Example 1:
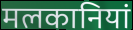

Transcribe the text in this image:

मलकानियां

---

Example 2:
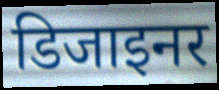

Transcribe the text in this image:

डिजाइनर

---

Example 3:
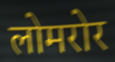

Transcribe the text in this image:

लोमरोर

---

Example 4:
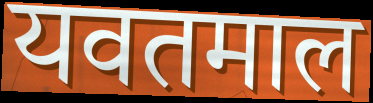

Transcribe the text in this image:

यवतमाल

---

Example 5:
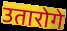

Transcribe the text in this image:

उतारोगे